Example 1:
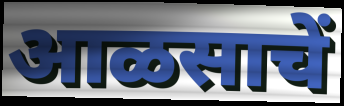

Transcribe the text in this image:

आळसाचें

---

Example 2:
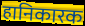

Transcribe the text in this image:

हानिकारक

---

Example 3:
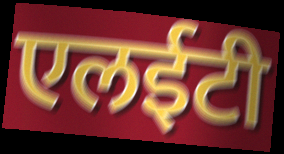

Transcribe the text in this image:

एलईटी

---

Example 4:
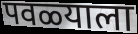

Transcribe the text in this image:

पवळ्याला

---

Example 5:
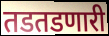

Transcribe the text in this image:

तडतडणारी